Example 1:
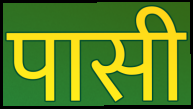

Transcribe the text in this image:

पासी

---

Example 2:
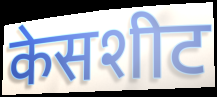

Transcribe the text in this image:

केसशीट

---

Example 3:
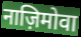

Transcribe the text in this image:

नाज़िमोवा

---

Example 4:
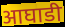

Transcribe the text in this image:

आघाडी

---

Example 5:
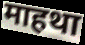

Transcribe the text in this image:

माहथा